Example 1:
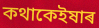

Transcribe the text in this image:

কথাকেইষাৰ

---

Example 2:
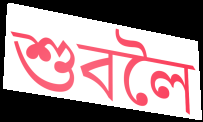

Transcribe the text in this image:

শুবলৈ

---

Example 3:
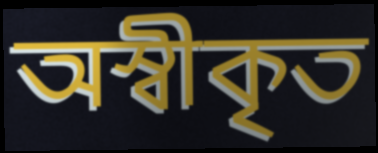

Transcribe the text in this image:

অস্বীকৃত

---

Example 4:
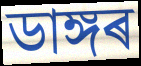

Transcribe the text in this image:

ডাঙ্গৰ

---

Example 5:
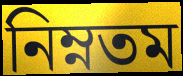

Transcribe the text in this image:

নিম্নতম